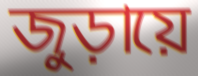
জুড়ায়ে